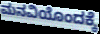
ಮನವಿಯೊಂದಕ್ಕೆ